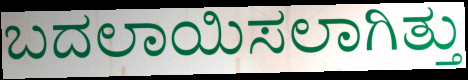
ಬದಲಾಯಿಸಲಾಗಿತ್ತು